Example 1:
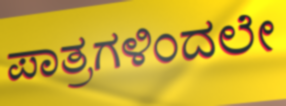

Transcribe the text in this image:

ಪಾತ್ರಗಳಿಂದಲೇ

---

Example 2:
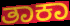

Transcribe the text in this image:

ತಾಕಾ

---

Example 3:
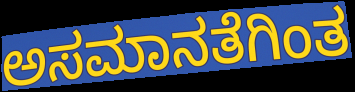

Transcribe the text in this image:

ಅಸಮಾನತೆಗಿಂತ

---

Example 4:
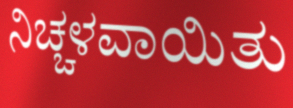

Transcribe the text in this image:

ನಿಚ್ಚಳವಾಯಿತು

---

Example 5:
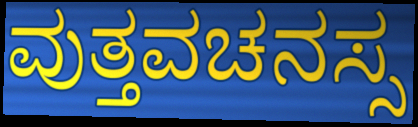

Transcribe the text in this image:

ವುತ್ತವಚನಸ್ಸ